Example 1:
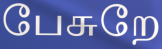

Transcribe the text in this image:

பேசுறே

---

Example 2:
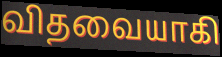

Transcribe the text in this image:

விதவையாகி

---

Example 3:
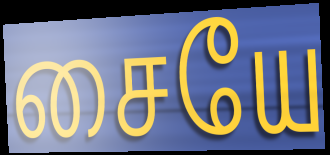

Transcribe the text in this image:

சையே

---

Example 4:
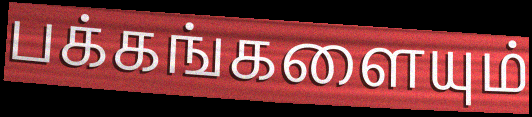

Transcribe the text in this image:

பக்கங்களையும்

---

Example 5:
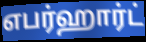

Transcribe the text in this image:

எபர்ஹார்ட்